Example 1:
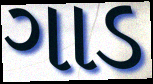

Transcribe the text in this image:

ગાડ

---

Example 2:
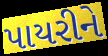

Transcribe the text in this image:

પાયરીને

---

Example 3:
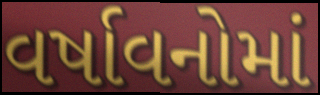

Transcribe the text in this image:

વર્ષાવનોમાં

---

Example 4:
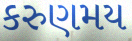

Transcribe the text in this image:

કરુણમય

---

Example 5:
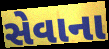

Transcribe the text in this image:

સેવાના